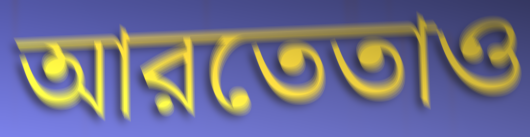
আরতেতাও